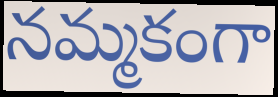
నమ్మకంగా